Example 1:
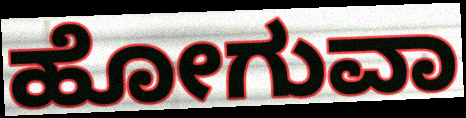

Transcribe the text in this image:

ಹೋಗುವಾ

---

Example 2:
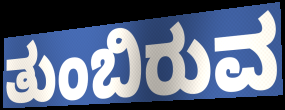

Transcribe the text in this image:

ತುಂಬಿರುವ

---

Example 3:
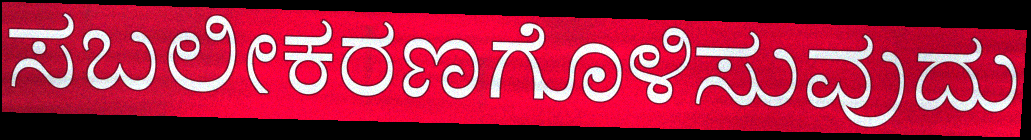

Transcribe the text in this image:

ಸಬಲೀಕರಣಗೊಳಿಸುವುದು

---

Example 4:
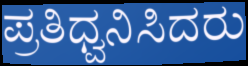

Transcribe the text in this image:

ಪ್ರತಿಧ್ವನಿಸಿದರು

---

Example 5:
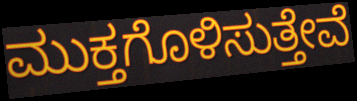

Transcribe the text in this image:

ಮುಕ್ತಗೊಳಿಸುತ್ತೇವೆ